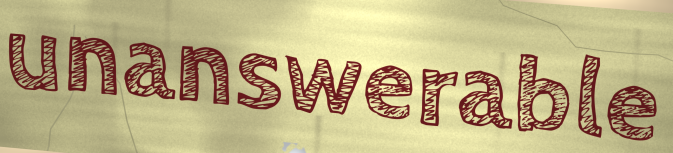
unanswerable